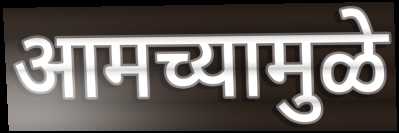
आमच्यामुळे